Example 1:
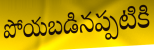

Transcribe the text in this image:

పోయబడినప్పటికి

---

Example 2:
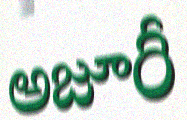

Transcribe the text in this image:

అజూరీ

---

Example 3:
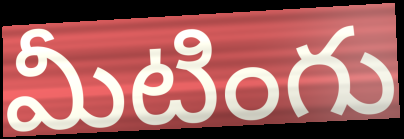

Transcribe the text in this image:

మీటింగు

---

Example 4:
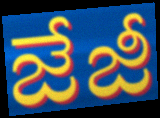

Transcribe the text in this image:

జేజీ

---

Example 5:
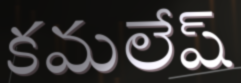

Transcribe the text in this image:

కమలేష్